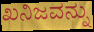
ಖನಿಜವನ್ನು